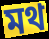
মথ